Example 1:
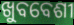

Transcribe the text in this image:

ଖୁବବେଶୀ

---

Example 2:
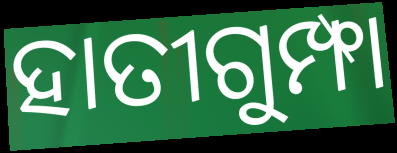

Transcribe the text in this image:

ହାତୀଗୁମ୍ଫା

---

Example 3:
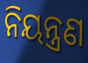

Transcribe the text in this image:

ନିୟନ୍ତ୍ରଣ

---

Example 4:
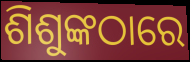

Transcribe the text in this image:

ଶିଶୁଙ୍କଠାରେ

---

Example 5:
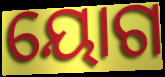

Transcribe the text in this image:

ୟୋଗ